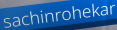
sachinrohekar